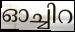
ഓച്ചിറ